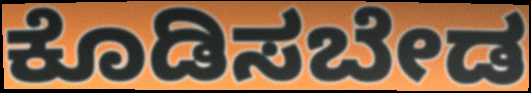
ಕೊಡಿಸಬೇಡ